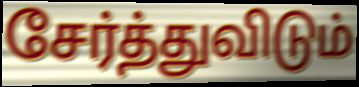
சேர்த்துவிடும்